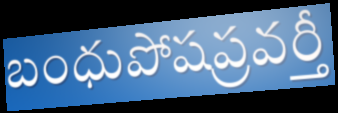
బంధుపోషప్రవర్తీ